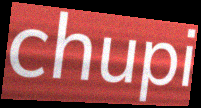
chupi